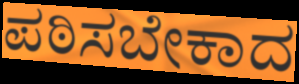
ಪಠಿಸಬೇಕಾದ